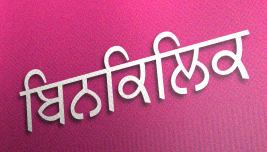
ਬਿਨਕਿਲਿਕ